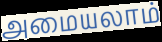
அமையலாம்